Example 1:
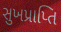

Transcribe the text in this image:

સુખપ્રાપ્તિ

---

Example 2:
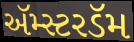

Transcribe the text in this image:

ઍમ્સ્ટરડૅમ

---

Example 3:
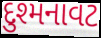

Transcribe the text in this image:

દુશ્મનાવટ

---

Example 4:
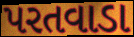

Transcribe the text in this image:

પરતવાડા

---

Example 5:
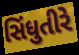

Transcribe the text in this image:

સિંધુતીરે